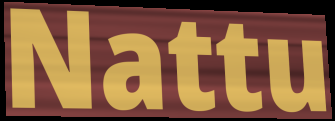
Nattu